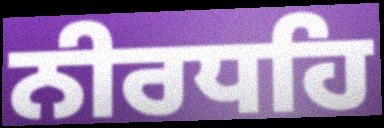
ਨੀਰਧਹਿ